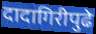
दादागिरीपुढे